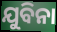
ଯୁବିନା